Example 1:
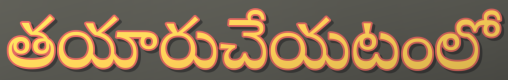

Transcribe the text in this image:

తయారుచేయటంలో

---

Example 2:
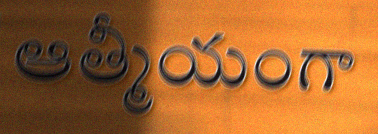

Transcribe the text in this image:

ఆత్మీయంగా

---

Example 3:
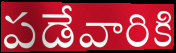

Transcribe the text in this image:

పడేవారికి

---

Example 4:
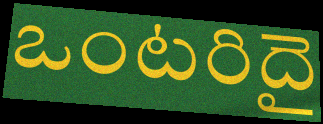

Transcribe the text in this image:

ఒంటరిదై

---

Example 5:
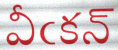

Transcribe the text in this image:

వీఁకన్